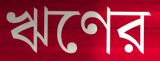
ঋণের